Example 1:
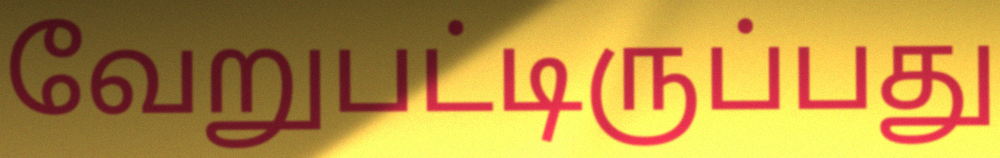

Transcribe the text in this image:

வேறுபட்டிருப்பது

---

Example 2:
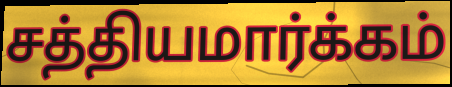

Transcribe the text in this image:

சத்தியமார்க்கம்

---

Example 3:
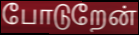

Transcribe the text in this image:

போடுறேன்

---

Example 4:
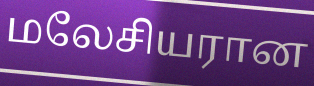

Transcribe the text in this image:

மலேசியரான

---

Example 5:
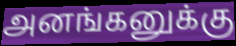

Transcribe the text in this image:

அனங்கனுக்கு